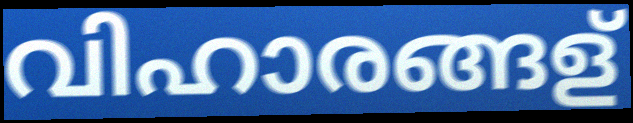
വിഹാരങ്ങള്